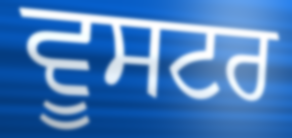
ਵੂਸਟਰ